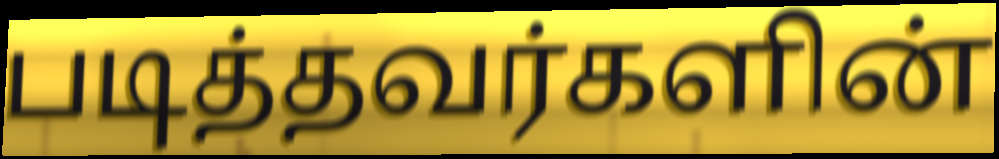
படித்தவர்களின்